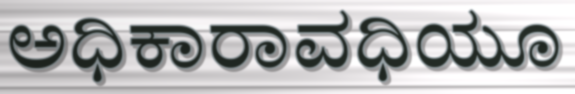
ಅಧಿಕಾರಾವಧಿಯೂ